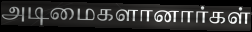
அடிமைகளானார்கள்